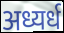
अध्यर्ध